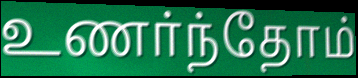
உணர்ந்தோம்